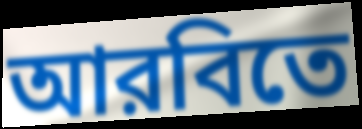
আরবিতে